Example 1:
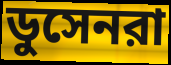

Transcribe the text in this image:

ডুসেনরা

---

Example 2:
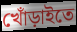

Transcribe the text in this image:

খোঁড়াইতে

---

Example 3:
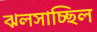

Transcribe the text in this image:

ঝলসাচ্ছিল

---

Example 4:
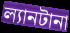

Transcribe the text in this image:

ল্যানটানা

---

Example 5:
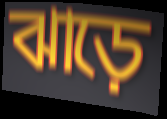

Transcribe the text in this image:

ঝাড়ে